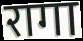
रागा